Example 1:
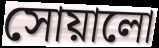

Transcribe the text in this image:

সোয়ালো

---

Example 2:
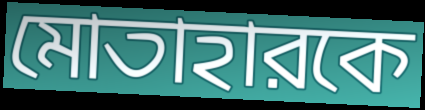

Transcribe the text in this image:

মোতাহারকে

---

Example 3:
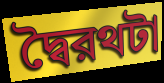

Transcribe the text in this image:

দ্বৈরথটা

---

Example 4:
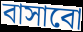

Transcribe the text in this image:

বাসাবো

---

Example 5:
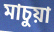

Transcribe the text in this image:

মাচুয়া